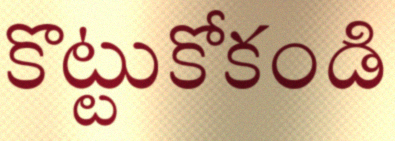
కొట్టుకోకండి